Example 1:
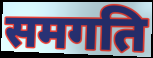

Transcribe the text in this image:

समगति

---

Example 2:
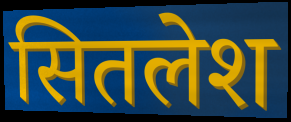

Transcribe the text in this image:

सितलेश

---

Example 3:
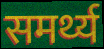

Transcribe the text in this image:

समर्थ्य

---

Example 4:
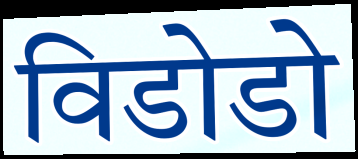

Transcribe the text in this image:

विडोडो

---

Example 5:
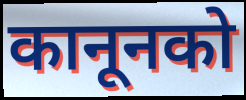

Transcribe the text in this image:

कानूनको